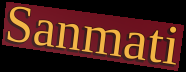
Sanmati